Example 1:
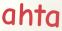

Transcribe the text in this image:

ahta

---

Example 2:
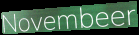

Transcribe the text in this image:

Novembeer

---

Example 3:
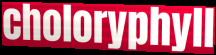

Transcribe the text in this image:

choloryphyll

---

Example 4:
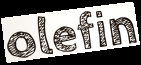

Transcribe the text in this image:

olefin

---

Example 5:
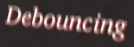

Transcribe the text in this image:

Debouncing